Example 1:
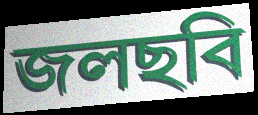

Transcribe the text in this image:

জলছবি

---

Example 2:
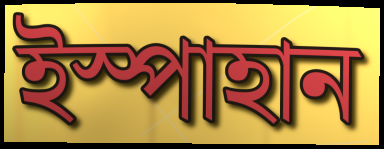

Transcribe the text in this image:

ইস্পাহান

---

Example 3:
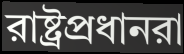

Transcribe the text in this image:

রাষ্ট্রপ্রধানরা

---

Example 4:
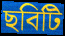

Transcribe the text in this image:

ছবিটি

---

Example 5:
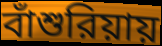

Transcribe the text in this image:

বাঁশুরিয়ায়